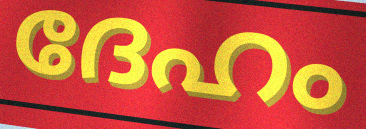
ദേഹം